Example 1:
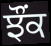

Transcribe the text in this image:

ਝੌਂਕ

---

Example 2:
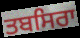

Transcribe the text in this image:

ਤਬਸਿਰਾ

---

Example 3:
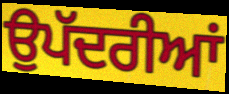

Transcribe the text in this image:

ਉਪੱਦਰੀਆਂ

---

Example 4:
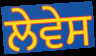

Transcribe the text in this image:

ਲੇਵੇਸ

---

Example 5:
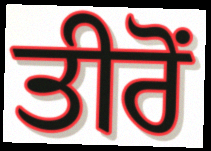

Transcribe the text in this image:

ਤੀਰੋਂ